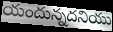
యందున్నదనియు